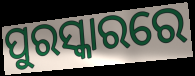
ପୁରସ୍କାରରେ